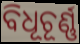
ବିଧୂଚୂର୍ଣ୍ଣ